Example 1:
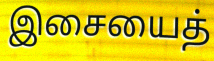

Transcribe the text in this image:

இசையைத்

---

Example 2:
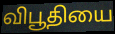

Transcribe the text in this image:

விபூதியை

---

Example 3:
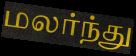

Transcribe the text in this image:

மலர்ந்து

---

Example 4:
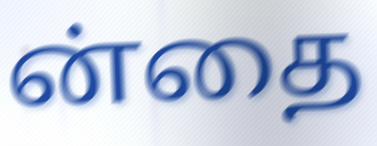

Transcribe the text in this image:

ன்தை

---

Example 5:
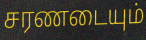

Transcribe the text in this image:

சரணடையும்